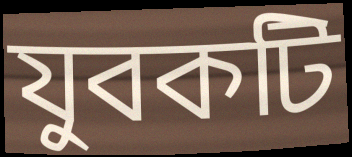
যুবকটি